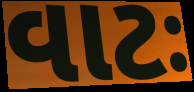
વાટઃ